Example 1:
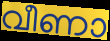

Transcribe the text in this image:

വീണാ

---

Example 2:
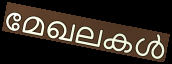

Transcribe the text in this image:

മേഖലകൾ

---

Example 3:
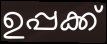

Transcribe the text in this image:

ഉപ്പക്ക്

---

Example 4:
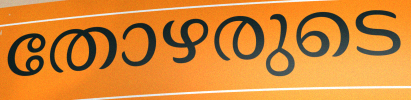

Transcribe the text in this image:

തോഴരുടെ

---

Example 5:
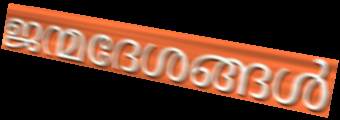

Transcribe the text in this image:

ജന്മദേശങ്ങൾ